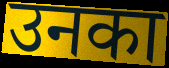
उनका